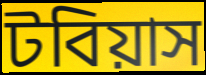
টবিয়াস